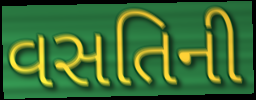
વસતિની